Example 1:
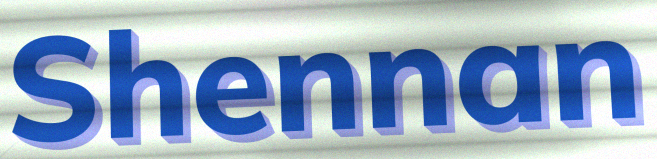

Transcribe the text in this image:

Shennan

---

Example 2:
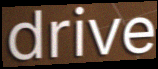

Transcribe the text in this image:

drive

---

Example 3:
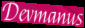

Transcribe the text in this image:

Devmanus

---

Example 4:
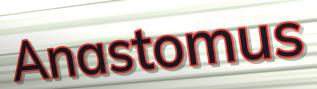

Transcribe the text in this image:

Anastomus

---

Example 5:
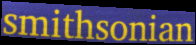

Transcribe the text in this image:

smithsonian